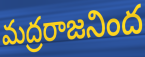
మద్రరాజనింద